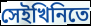
সেইখিনিতে